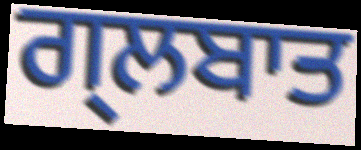
ਗ੍ਲਬਾਤ